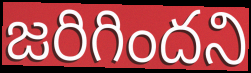
జరిగిందని